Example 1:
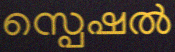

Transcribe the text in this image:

സ്പെഷൽ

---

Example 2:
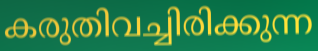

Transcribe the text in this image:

കരുതിവച്ചിരിക്കുന്ന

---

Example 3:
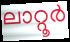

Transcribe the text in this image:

ലാറ്റൂർ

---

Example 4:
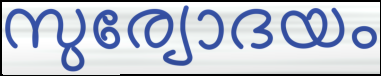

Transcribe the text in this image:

സുര്യോദയം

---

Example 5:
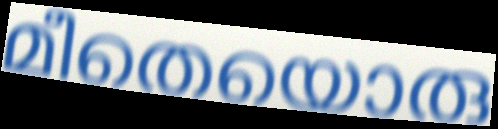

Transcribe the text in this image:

മീതെയൊരു